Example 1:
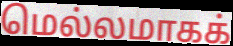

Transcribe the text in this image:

மெல்லமாகக்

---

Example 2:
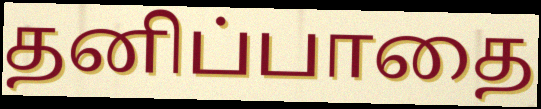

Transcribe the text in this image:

தனிப்பாதை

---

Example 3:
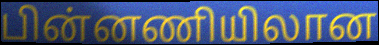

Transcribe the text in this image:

பின்னணியிலான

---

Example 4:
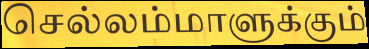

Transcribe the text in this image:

செல்லம்மாளுக்கும்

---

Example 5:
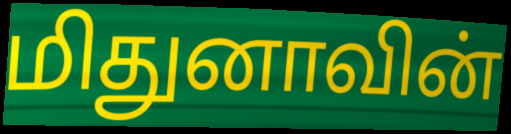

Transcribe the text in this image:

மிதுனாவின்